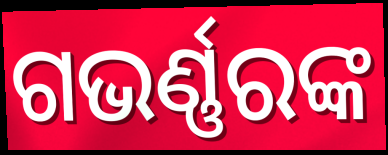
ଗଭର୍ଣ୍ଣରଙ୍କ